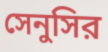
সেনুসির